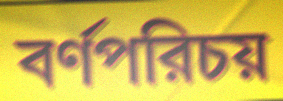
বর্ণপরিচয়